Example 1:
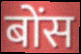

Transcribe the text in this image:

बोंस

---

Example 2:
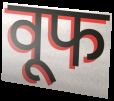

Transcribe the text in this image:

वूफ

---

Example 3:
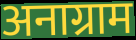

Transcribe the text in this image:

अनाग्राम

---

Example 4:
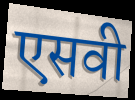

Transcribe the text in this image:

एसवी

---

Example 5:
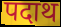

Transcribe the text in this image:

पदाथ